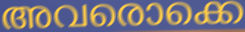
അവരൊക്കെ